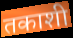
तकाशी